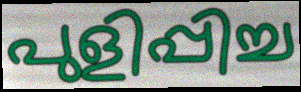
പുളിപ്പിച്ച